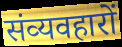
संव्‍यवहारों